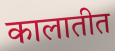
कालातीत